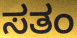
ಸತಂ